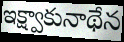
ఇక్ష్వాకునాథేన